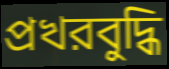
প্রখরবুদ্ধি